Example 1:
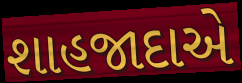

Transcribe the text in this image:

શાહજાદાએ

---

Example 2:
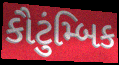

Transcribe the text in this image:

કૌટુંમ્બિક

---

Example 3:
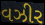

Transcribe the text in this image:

વઝીર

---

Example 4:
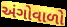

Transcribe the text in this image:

અંગોવાળો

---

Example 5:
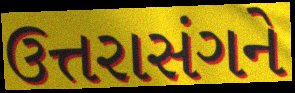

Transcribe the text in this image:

ઉત્તરાસંગને